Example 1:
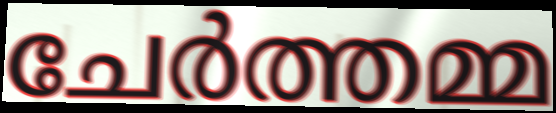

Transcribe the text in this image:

ചേർത്തമ്മ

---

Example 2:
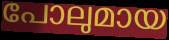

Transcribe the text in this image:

പോലുമായ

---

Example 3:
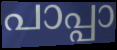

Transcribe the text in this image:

പാപ്പാ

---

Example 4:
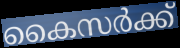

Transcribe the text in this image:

കൈസർക്ക്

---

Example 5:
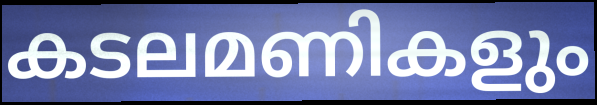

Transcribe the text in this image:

കടലമണികളും